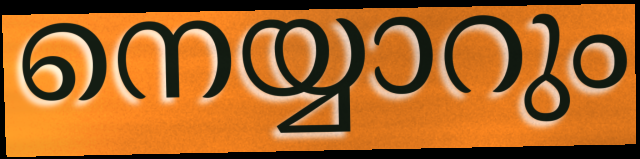
നെയ്യാറും